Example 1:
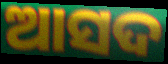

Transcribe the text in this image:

ଆସଦ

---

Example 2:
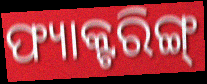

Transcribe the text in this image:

ଫ୍ୟାକ୍ଟରିଙ୍ଗ୍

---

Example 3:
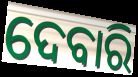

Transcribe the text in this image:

ଦେବାରି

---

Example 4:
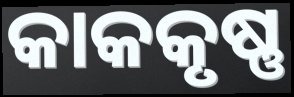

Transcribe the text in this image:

କାକକୃଷ୍ଣ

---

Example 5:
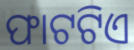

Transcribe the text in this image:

ଫାଟଟିଏ